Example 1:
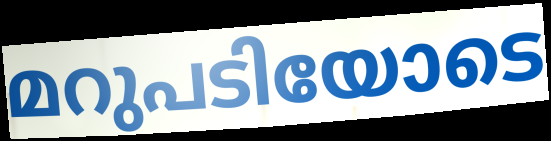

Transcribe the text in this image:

മറുപടിയോടെ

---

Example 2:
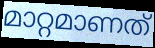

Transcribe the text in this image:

മാറ്റമാണത്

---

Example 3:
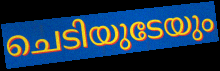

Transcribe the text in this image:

ചെടിയുടേയും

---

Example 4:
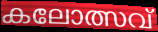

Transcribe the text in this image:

കലോത്സവ്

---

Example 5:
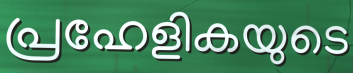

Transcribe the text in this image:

പ്രഹേളികയുടെ